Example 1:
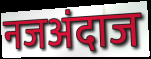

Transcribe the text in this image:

नजअंदाज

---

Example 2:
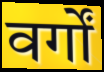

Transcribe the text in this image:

वर्गों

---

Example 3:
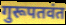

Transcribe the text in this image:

गुरूपतवंत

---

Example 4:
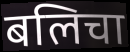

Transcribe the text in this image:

बलिचा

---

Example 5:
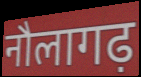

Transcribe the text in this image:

नौलागढ़